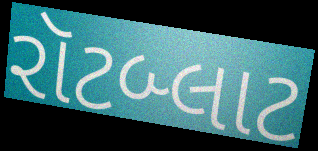
રૉટબ્લાટ